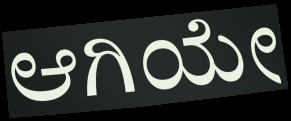
ಆಗಿಯೇ